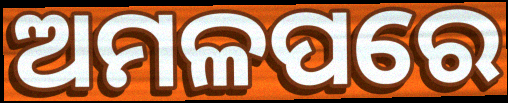
ଅମଳପରେ